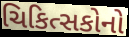
ચિકિત્સકોનો